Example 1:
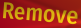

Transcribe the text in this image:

Remove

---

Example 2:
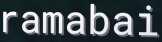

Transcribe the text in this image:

ramabai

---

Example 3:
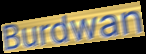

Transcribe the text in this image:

Burdwan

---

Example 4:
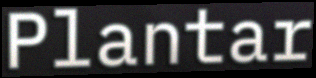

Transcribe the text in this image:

Plantar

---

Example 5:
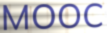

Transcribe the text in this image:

MOOC